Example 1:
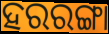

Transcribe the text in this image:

ହରରଙ୍ଗା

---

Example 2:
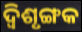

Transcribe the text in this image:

ଦ୍ଵିଶୃଙ୍ଗକ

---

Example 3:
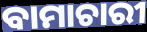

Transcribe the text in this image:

ବାମାଚାରୀ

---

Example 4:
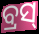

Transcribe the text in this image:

ବ୍ରସ୍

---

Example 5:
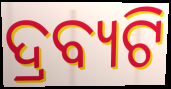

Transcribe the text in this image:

ଦ୍ରବ୍ୟଟି